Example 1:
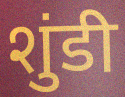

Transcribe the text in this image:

शुंडी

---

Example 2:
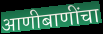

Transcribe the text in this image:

आणीबाणींचा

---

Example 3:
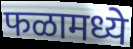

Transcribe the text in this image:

फळामध्ये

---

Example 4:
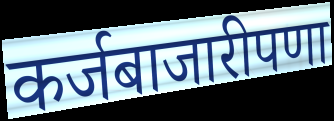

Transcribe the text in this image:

कर्जबाजारीपणा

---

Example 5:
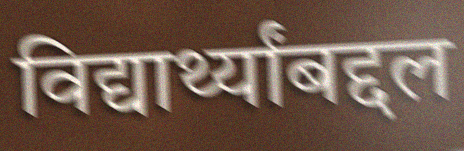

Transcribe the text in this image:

विद्यार्थ्यांबद्दल